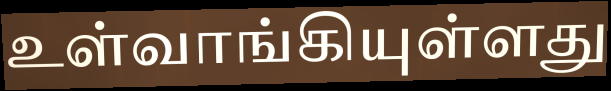
உள்வாங்கியுள்ளது